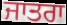
ਜਾਤਰਾ